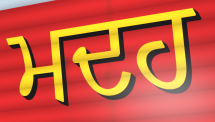
ਮਦਹ